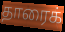
தாரைக்